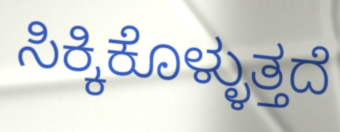
ಸಿಕ್ಕಿಕೊಳ್ಳುತ್ತದೆ